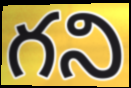
గని